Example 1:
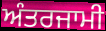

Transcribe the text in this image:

ਅੰਤਰਜਾਮੀ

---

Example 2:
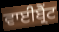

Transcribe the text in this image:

ਵਾਈਬ੍ਰੈਂਟ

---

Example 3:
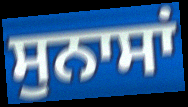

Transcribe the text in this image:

ਸੁਨਾਸਾਂ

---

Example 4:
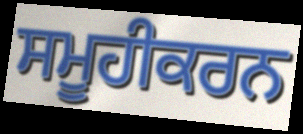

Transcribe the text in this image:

ਸਮੂਹੀਕਰਨ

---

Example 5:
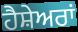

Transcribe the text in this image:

ਹੈਸ਼ੇਅਰਾਂ